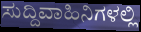
ಸುದ್ದಿವಾಹಿನಿಗಳಲ್ಲಿ